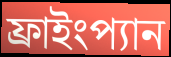
ফ্রাইংপ্যান